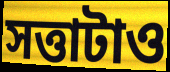
সত্তাটাও